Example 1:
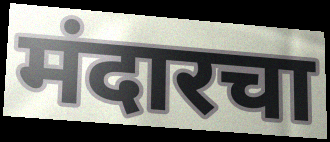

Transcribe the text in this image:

मंदारचा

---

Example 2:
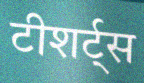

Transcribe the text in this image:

टीशर्ट्स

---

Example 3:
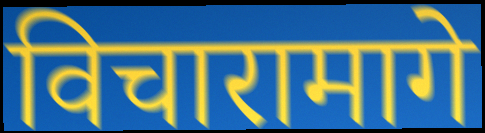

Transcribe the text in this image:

विचारामागे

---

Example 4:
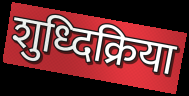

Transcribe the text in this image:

शुध्दिक्रिया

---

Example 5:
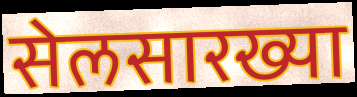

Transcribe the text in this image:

सेलसारख्या